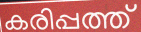
കരിപ്പത്ത്